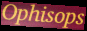
Ophisops